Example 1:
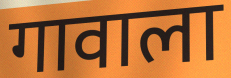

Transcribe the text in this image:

गावाला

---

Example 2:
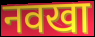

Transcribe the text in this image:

नवखा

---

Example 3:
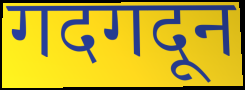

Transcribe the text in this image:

गदगदून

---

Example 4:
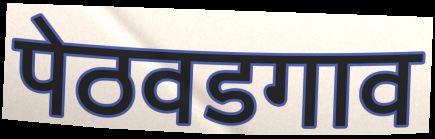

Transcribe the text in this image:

पेठवडगाव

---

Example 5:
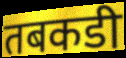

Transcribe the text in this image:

तबकडी